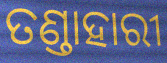
ତଣ୍ଡାହାରୀ